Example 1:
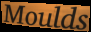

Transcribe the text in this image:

Moulds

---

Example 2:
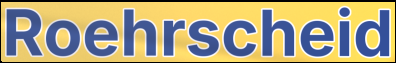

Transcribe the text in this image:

Roehrscheid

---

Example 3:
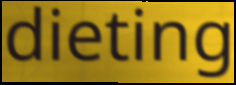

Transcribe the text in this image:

dieting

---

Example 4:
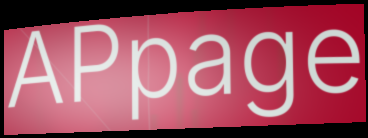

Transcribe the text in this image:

APpage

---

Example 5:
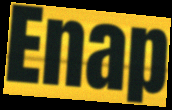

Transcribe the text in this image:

Enap